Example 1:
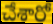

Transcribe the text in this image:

చేశారో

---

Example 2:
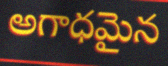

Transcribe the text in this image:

అగాధమైన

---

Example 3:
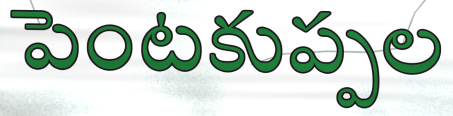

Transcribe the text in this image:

పెంటకుప్పల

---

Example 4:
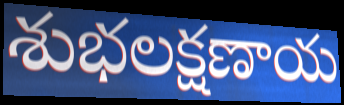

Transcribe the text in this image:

శుభలక్షణాయ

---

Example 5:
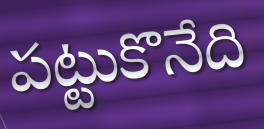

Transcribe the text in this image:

పట్టుకొనేది